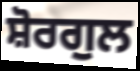
ਸ਼ੋਰਗੁਲ